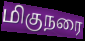
மிகுநரை